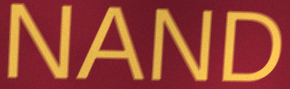
NAND